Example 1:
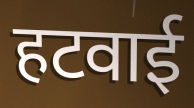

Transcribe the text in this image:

हटवाई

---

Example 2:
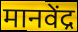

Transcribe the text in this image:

मानवेंद्र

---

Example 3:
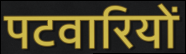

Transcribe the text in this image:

पटवारियों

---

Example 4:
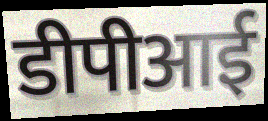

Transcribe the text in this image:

डीपीआई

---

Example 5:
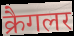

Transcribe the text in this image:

क्रैगलर